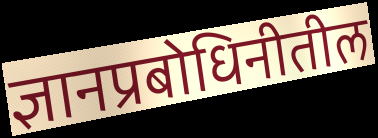
ज्ञानप्रबोधिनीतील